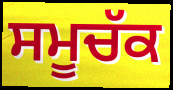
ਸਮੂਚੱਕ